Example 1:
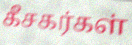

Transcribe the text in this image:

கீசகர்கள்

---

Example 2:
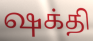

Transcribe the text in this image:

ஷக்தி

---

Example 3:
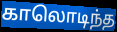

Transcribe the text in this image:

காலொடிந்த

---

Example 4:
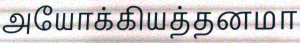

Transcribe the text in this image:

அயோக்கியத்தனமா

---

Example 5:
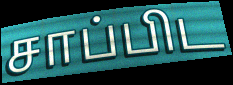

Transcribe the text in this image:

சாப்பிட